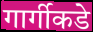
गार्गीकडे